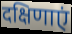
दक्षिणाएं